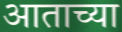
आताच्या